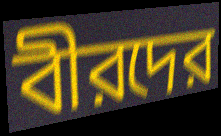
বীরদের